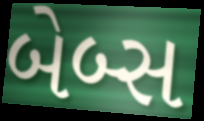
બેબ્સ